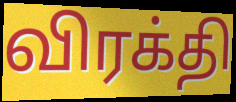
விரக்தி